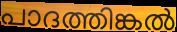
പാദത്തിങ്കൽ